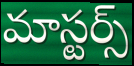
మాస్టర్స్